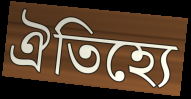
ঐতিহ্যে